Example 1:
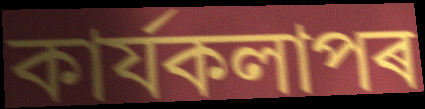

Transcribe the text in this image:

কাৰ্যকলাপৰ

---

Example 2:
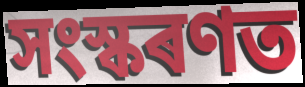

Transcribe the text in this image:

সংস্কৰণত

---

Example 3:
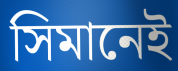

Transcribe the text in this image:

সিমানেই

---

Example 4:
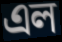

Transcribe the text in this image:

এল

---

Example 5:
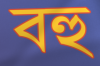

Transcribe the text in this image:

বহু